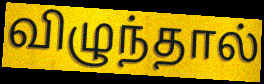
விழுந்தால்